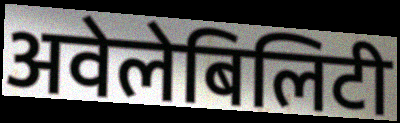
अवेलेबिलिटी